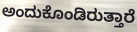
ಅಂದುಕೊಂಡಿರುತ್ತಾರೆ